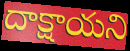
దాక్షాయని